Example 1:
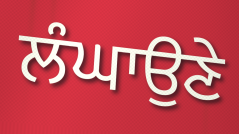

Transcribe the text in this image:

ਲੰਘਾਉਣੇ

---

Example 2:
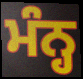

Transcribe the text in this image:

ਮੰਨ੍ਹ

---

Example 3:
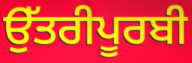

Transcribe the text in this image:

ਉੱਤਰੀਪੂਰਬੀ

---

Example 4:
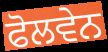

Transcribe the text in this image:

ਫੋਲਵੇਨ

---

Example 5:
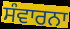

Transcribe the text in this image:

ਸੰਵਾਰਨਾ